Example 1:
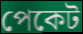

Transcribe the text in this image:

পেকেট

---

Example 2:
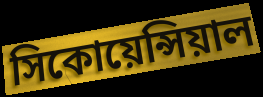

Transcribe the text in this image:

সিকোয়েন্সিয়াল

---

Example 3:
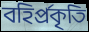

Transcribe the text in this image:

বহির্প্রকৃতি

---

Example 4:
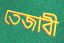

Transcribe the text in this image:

তেজাবী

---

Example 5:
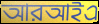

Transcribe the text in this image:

আরআইএ